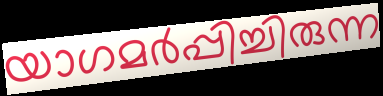
യാഗമർപ്പിച്ചിരുന്ന